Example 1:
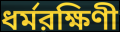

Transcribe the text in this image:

ধর্মরক্ষিণী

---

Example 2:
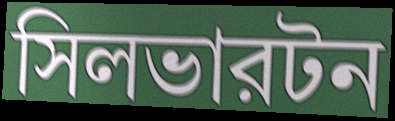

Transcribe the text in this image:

সিলভারটন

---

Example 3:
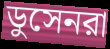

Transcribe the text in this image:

ডুসেনরা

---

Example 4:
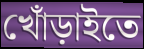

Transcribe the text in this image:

খোঁড়াইতে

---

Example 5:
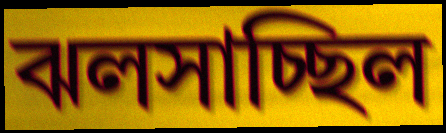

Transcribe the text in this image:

ঝলসাচ্ছিল